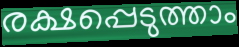
രക്ഷപ്പെടുത്താം